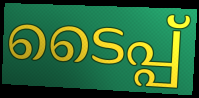
ടൈപ്പ്